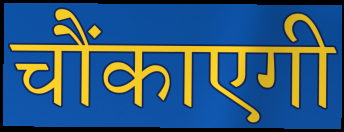
चौंकाएगी